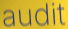
audit